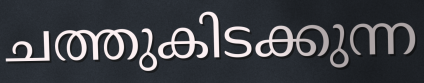
ചത്തുകിടക്കുന്ന